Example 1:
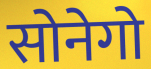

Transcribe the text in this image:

सोनेगो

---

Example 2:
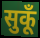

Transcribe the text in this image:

सुकूँ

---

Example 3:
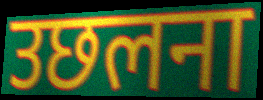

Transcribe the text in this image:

उछलना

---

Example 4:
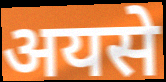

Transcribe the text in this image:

अयसे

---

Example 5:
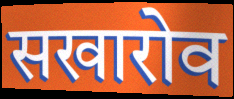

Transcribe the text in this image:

सखारोव